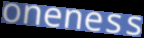
oneness